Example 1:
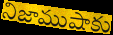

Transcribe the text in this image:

నిజాముషాకు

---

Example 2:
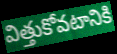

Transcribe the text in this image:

విత్తుకోవటానికి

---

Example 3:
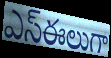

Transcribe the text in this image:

ఎస్ఈలుగా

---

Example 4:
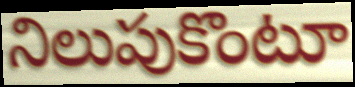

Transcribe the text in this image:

నిలుపుకొంటూ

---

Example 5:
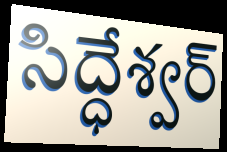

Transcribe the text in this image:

సిద్ధేశ్వర్